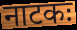
नाटकः